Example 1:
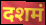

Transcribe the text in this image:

दशमं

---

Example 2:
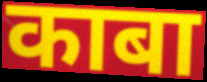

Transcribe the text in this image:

काबा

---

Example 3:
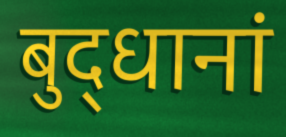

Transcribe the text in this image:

बुद्धानां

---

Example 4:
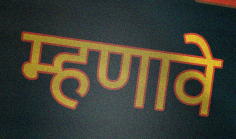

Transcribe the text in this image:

म्हणावे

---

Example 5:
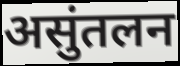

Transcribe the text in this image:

असुंतलन